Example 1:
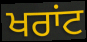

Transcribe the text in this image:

ਖਰਾਂਟ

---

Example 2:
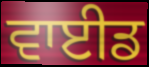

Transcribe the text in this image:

ਵਾਈਡ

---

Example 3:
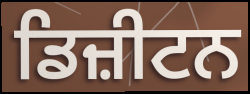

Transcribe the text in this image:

ਡਿਜ਼ੀਟਨ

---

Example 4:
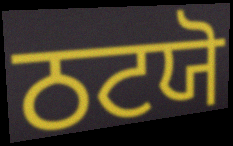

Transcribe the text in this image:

ਠਟਯੋ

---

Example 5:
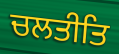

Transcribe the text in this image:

ਚਲਤੀਤਿ